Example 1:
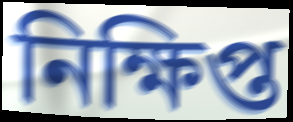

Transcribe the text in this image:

নিক্ষিপ্ত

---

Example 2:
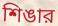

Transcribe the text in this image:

শিঙার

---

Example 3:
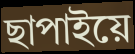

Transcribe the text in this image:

ছাপাইয়ে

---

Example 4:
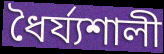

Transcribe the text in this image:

ধৈর্য্যশালী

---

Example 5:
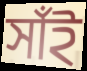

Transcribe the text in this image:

সাঁই